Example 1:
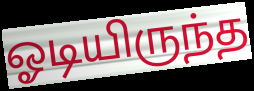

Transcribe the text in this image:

ஓடியிருந்த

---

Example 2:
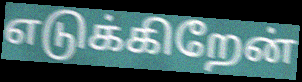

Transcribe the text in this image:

எடுக்கிறேன்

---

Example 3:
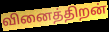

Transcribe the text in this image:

வினைத்திறன்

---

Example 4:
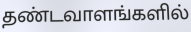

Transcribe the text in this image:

தண்டவாளங்களில்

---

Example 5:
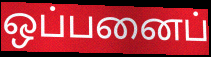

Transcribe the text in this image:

ஒப்பனைப்